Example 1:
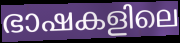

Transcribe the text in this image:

ഭാഷകളിലെ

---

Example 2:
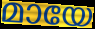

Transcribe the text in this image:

മായേ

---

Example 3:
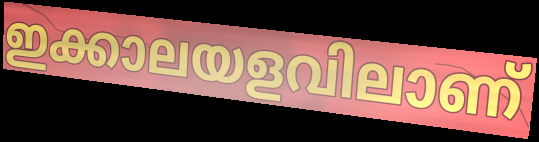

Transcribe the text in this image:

ഇക്കാലയളവിലാണ്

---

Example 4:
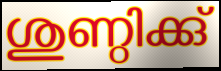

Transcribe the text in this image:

ശുണ്ഠിക്കു്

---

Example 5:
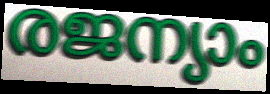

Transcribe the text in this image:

രജന്യാം